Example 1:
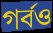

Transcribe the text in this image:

গর্বও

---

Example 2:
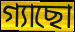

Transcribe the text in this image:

গ্যাছো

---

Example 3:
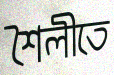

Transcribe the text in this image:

শৈলীতে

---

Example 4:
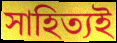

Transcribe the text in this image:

সাহিত্যই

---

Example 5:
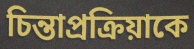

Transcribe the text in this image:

চিন্তাপ্রক্রিয়াকে